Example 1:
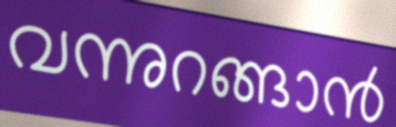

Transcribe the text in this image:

വന്നുറങ്ങാൻ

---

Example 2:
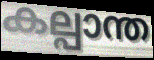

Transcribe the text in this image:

കല്പാന്ത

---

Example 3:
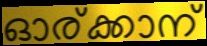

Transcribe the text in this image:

ഓര്ക്കാന്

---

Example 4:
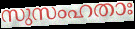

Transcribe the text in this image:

സുസംഹതാഃ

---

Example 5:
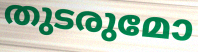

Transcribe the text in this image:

തുടരുമോ